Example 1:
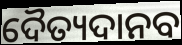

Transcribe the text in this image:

ଦୈତ୍ୟଦାନବ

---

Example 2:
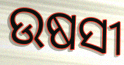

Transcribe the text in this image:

ଉଷସୀ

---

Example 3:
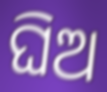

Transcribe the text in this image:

ଘିଅ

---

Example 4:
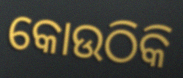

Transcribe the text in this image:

କୋଉଠିକି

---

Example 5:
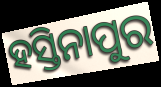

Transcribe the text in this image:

ହସ୍ତିନାପୁର